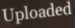
Uploaded